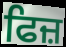
ਫਿਜ਼